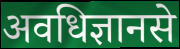
अवधिज्ञानसे